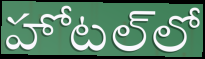
హోటల్‌లో